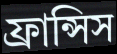
ফ্রান্সিস